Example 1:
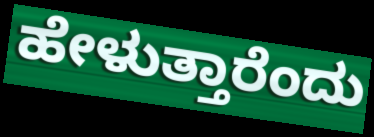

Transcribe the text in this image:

ಹೇಳುತ್ತಾರೆಂದು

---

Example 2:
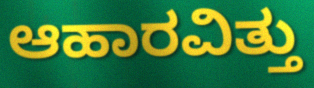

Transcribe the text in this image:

ಆಹಾರವಿತ್ತು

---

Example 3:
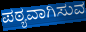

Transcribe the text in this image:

ಪಠ್ಯವಾಗಿಸುವ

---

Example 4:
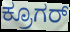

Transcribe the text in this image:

ಕ್ರೂಗರ್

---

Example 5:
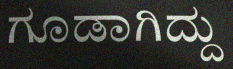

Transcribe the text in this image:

ಗೂಡಾಗಿದ್ದು